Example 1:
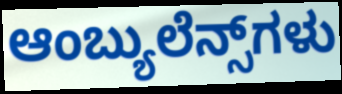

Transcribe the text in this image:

ಆಂಬ್ಯುಲೆನ್ಸ್‌ಗಳು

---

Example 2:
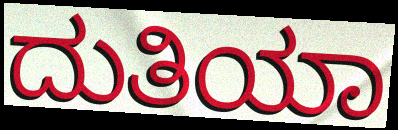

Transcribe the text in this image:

ದುತಿಯಾ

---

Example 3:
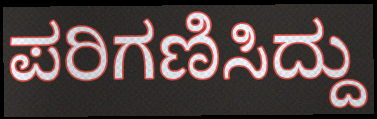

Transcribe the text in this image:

ಪರಿಗಣಿಸಿದ್ದು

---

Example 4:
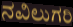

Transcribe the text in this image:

ನವಿಲುಗರಿ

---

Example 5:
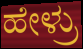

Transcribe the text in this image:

ಹೇಳ್ರು